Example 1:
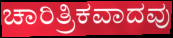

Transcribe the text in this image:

ಚಾರಿತ್ರಿಕವಾದವು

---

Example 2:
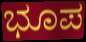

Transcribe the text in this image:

ಭೂಪ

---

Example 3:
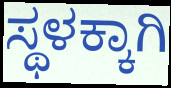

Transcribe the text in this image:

ಸ್ಥಳಕ್ಕಾಗಿ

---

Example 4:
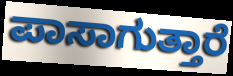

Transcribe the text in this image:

ಪಾಸಾಗುತ್ತಾರೆ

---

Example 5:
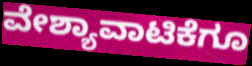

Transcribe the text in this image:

ವೇಶ್ಯಾವಾಟಿಕೆಗೂ